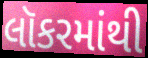
લૉકરમાંથી